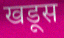
खडूस